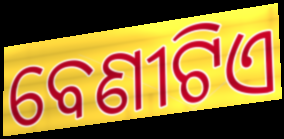
ବେଣୀଟିଏ